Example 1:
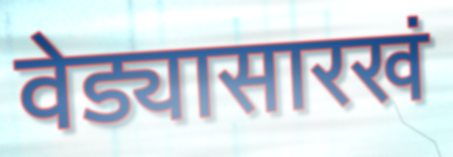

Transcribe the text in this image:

वेड्यासारखं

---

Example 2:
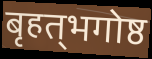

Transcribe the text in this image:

बृहत्‌भगोष्ठ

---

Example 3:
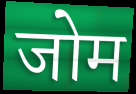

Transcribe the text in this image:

जोम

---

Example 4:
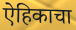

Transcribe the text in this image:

ऐहिकाचा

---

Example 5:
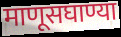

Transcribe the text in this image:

माणूसघाण्या